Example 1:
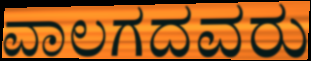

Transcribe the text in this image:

ವಾಲಗದವರು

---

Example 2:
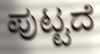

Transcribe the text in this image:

ಪುಟ್ಟದೆ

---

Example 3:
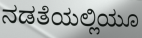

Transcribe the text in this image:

ನಡತೆಯಲ್ಲಿಯೂ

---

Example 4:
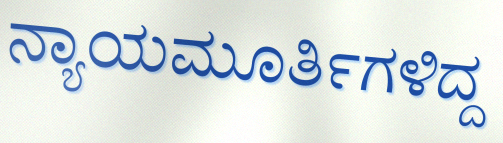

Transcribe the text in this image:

ನ್ಯಾಯಮೂರ್ತಿಗಳಿದ್ದ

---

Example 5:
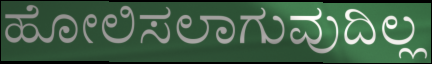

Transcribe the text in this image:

ಹೋಲಿಸಲಾಗುವುದಿಲ್ಲ